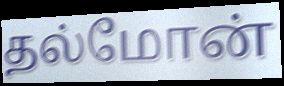
தல்மோன்